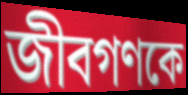
জীবগণকে